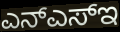
ಎನ್ಎಸ್ಇ